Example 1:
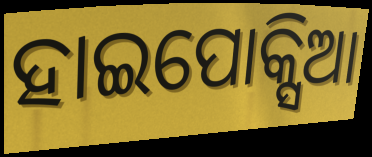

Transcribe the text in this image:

ହାଇପୋକ୍ସିଆ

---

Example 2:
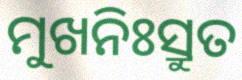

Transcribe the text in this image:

ମୁଖନିଃସ୍ରୁତ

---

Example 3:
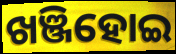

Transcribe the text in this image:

ଖଞ୍ଜିହୋଇ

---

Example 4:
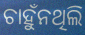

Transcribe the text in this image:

ଚାହୁଁନଥିଲି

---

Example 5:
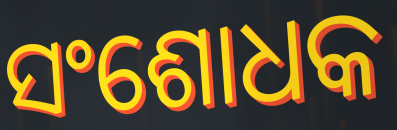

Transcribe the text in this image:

ସଂଶୋଧକ